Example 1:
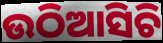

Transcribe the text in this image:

ଉଠିଆସିଚି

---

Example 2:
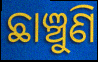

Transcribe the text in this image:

ଛାଞ୍ଚୁଣି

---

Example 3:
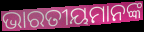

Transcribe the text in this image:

ଭାରତୀୟମାନଙ୍କ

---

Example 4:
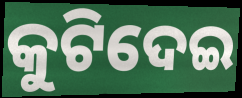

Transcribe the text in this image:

କୁଟିଦେଇ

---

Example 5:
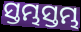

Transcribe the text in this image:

ସ୍ତମ୍ଭସ୍ତମ୍ଭ